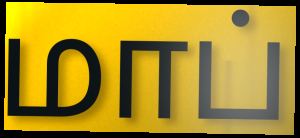
மாப்